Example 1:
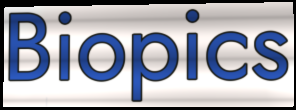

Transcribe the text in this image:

Biopics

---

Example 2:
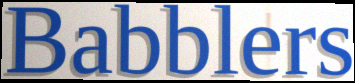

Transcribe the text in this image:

Babblers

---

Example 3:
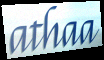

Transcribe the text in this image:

athaa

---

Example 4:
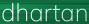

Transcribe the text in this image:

dhartan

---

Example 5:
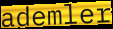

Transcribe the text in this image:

ademler